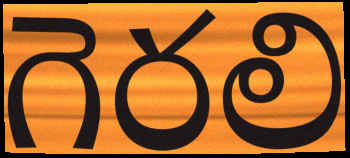
గెరలి